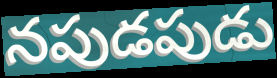
నపుడపుడు